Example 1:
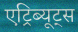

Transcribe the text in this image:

एट्रिब्यूट्स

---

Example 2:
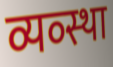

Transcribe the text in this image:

व्यव्स्था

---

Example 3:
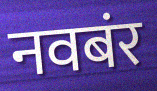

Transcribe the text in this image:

नवबंर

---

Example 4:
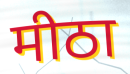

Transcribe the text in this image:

मीठा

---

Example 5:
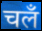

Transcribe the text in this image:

चलँ